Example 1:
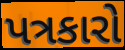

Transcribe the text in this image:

પત્રકારો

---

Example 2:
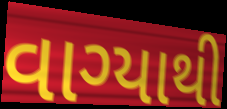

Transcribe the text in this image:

વાગ્યાથી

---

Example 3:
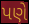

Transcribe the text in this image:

પણે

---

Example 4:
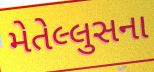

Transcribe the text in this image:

મેતેલ્લુસના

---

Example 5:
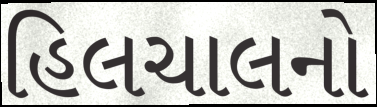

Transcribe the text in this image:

હિલચાલનો